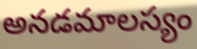
అనడమాలస్యం